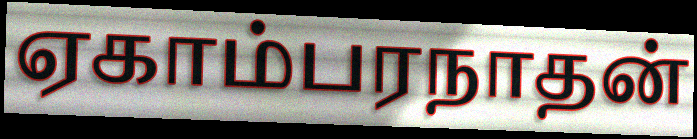
ஏகாம்பரநாதன்